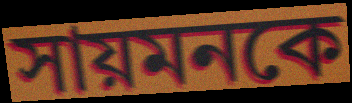
সায়মনকে